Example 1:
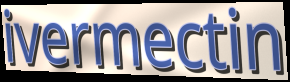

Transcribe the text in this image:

ivermectin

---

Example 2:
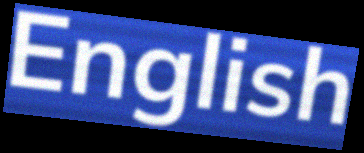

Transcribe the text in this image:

English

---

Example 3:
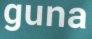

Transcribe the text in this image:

guna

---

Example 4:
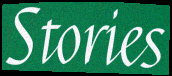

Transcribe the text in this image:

Stories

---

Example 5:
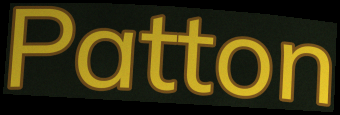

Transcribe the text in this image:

Patton